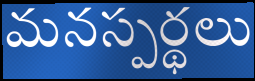
మనస్పర్థలు